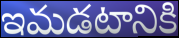
ఇమడటానికి